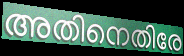
അതിനെതിരേ